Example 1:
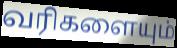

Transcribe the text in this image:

வரிகளையும்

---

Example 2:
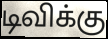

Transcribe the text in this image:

டிவிக்கு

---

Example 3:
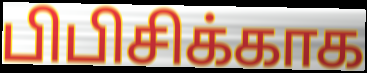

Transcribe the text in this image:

பிபிசிக்காக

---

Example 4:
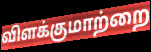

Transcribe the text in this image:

விளக்குமாற்றை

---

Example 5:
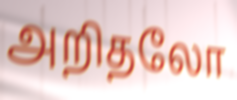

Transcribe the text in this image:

அறிதலோ